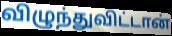
விழுந்துவிட்டான்